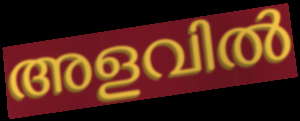
അളവിൽ